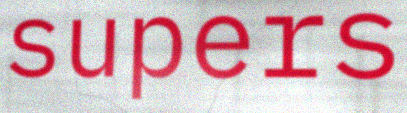
supers